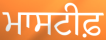
ਮਾਸਟੀਫ਼